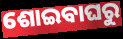
ଶୋଇବାଘରୁ